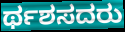
ರ್ಥಶಸದರು